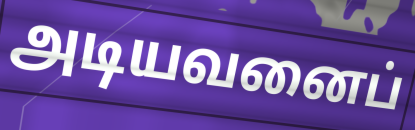
அடியவனைப்